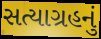
સત્યાગ્રહનું